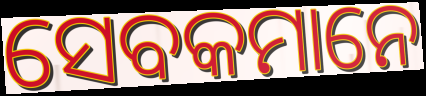
ସେବକମାନେ